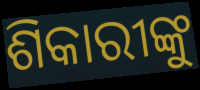
ଶିକାରୀଙ୍କୁ